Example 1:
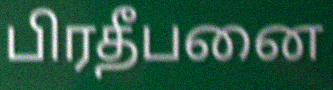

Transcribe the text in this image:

பிரதீபனை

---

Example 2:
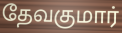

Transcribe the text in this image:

தேவகுமார்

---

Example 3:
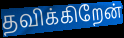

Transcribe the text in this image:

தவிக்கிறேன்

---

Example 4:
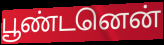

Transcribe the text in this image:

பூண்டனென்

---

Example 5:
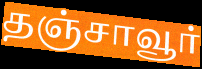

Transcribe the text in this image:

தஞ்சாவூர்